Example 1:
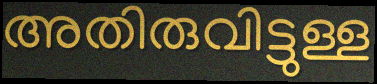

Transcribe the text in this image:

അതിരുവിട്ടുള്ള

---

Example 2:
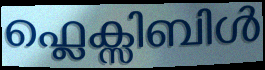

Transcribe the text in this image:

ഫ്ലെക്സിബിൾ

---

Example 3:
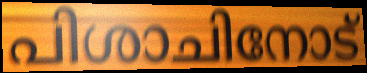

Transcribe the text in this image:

പിശാചിനോട്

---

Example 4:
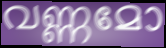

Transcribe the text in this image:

വണ്ണമോ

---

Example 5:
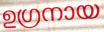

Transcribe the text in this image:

ഉഗ്രനായ